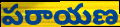
పరాయణ